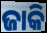
ଜାକି